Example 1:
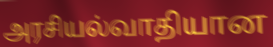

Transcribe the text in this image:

அரசியல்வாதியான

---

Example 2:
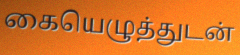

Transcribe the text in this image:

கையெழுத்துடன்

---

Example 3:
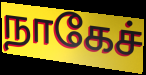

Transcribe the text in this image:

நாகேச்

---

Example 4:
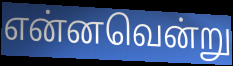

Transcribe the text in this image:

என்னவென்று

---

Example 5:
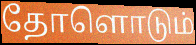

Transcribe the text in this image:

தோளொடும்